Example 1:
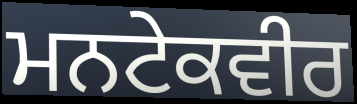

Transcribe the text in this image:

ਮਨਟੇਕਵੀਰ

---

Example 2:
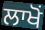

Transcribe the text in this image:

ਲਾਖੋਂ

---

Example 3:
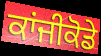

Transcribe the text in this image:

ਕਾਂਜੀਕੋਡੇ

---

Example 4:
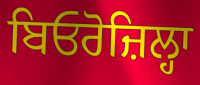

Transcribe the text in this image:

ਬਿਓਰੋਜ਼ਿਲ੍ਹਾ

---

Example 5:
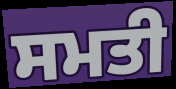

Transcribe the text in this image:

ਸਮਤੀ